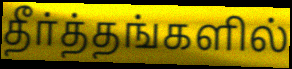
தீர்த்தங்களில்